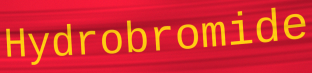
Hydrobromide